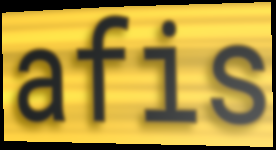
afis